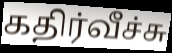
கதிர்வீச்சு